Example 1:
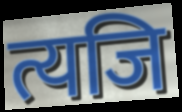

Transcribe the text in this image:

त्यजि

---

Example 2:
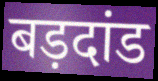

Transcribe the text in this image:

बड़दांड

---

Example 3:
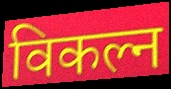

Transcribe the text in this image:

विकल्न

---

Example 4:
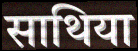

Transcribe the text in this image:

साथिया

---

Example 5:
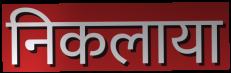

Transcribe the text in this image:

निकलाया